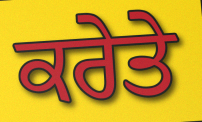
ਕਰੇਤੇ